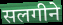
सलगीने